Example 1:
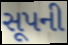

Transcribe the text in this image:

સૂપની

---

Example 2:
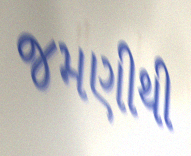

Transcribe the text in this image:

જમણીથી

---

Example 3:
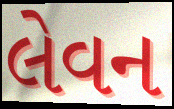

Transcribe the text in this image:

લેવન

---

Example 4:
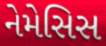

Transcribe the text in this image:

નેમેસિસ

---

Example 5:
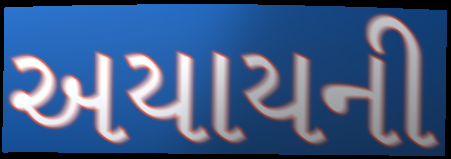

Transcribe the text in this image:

અયાયની